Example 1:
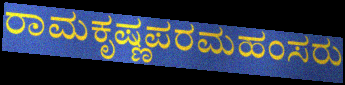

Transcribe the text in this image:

ರಾಮಕೃಷ್ಣಪರಮಹಂಸರು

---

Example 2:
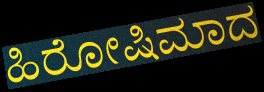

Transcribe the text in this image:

ಹಿರೋಷಿಮಾದ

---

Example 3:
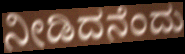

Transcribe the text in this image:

ನೀಡಿದನೆಂದು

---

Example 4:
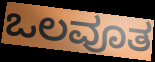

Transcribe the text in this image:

ಒಲವೂತ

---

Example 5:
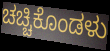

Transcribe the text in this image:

ಚಚ್ಚಿಕೊಂಡಳು